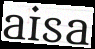
aisa